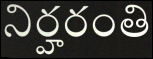
నిర్హరంతి